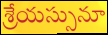
శ్రేయస్సునూ